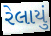
રેલાયું